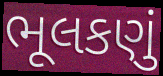
ભૂલકણું